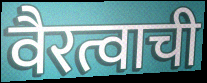
वैरत्वाची